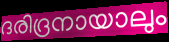
ദരിദ്രനായാലും